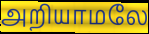
அறியாமலே